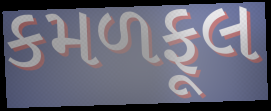
કમળફૂલ